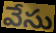
వేసు